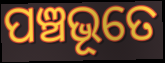
ପଞ୍ଚଭୂତେ